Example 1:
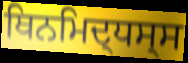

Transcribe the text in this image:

ਥਿਨਮਿਦ੍ਧਸ੍ਸ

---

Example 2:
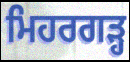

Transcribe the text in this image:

ਮਿਹਰਗੜ੍ਹ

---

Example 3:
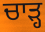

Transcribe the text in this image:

ਚਾਡ਼੍ਹ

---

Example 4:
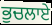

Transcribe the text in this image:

ਭੁਚਲਾਏ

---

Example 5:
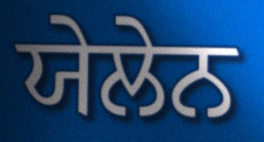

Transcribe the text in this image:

ਯੇਲੇਨ